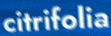
citrifolia